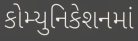
કોમ્યુનિકેશનમાં